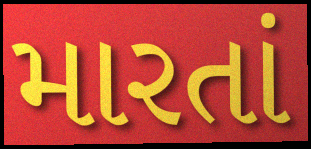
મારતાં